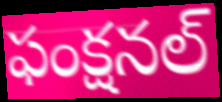
ఫంక్షనల్